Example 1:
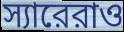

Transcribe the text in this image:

স্যারেরাও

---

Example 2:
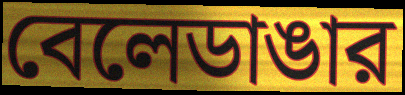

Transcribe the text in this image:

বেলেডাঙার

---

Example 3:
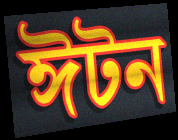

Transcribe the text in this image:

ঈটন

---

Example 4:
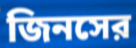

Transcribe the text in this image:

জিনসের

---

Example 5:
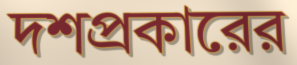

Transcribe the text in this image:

দশপ্রকারের